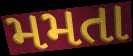
મમતા